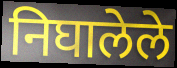
निघालेले